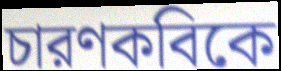
চারণকবিকে